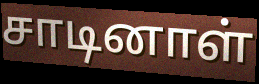
சாடினாள்